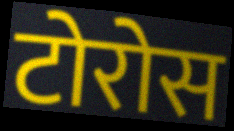
टोरोस